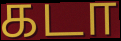
கடா